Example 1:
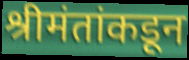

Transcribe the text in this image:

श्रीमंतांकडून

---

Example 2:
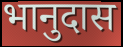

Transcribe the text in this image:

भानुदास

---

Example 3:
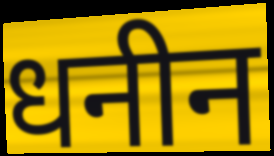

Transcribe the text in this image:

धनीन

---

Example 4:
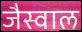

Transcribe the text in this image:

जैस्वाल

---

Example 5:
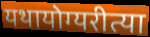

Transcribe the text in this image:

यथायोग्यरीत्या